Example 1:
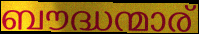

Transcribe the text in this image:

ബൗദ്ധന്മാര്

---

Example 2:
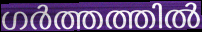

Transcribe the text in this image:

ഗർത്തത്തിൽ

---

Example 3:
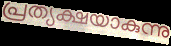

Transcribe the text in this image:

പ്രത്യക്ഷയാകുന്നു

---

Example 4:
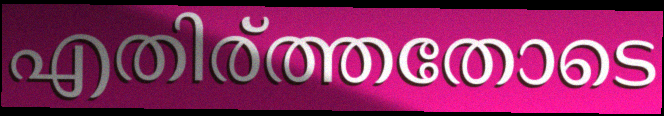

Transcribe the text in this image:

എതിര്ത്തതോടെ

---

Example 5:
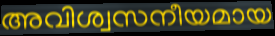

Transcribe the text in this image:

അവിശ്വസനീയമായ